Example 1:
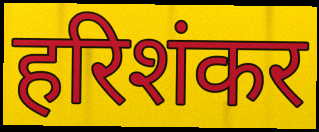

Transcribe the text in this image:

हरिशंकर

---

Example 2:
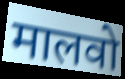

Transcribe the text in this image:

मालवो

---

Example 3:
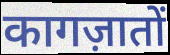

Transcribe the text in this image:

कागज़ातों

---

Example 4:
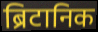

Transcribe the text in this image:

ब्रिटानिक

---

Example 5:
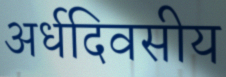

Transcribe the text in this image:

अर्धदिवसीय